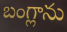
బంగ్లాను